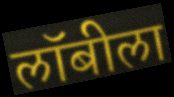
लॉबीला